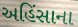
અહિંસાના